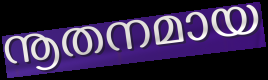
നൂതനമായ